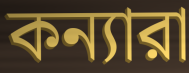
কন্যারা